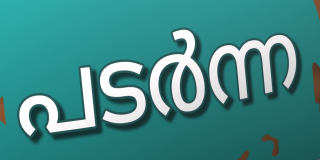
പടർന്ന